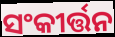
ସଂକୀର୍ତ୍ତନ